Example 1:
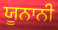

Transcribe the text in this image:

ਯੂਨਾਨੀ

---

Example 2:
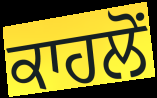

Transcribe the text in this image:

ਕਾਹਲੋਂ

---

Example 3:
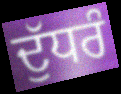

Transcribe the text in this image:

ਦੁੱਧਰੰ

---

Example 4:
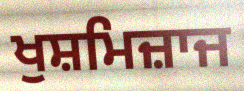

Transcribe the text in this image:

ਖੁਸ਼ਮਿਜ਼ਾਜ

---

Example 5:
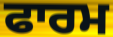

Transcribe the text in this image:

ਫਾਰਮ